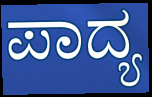
ಪಾದ್ಯ